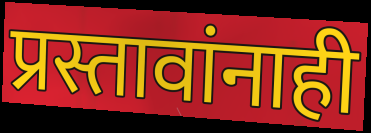
प्रस्तावांनाही